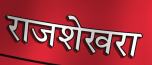
राजशेखरा